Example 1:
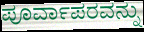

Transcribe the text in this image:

ಪೂರ್ವಾಪರವನ್ನು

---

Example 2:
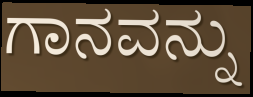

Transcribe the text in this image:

ಗಾನವನ್ನು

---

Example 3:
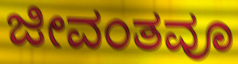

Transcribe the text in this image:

ಜೀವಂತವೂ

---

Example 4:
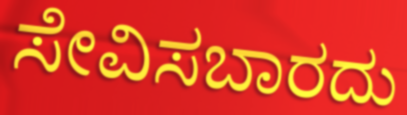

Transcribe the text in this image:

ಸೇವಿಸಬಾರದು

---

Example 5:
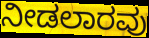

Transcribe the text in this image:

ನೀಡಲಾರವು